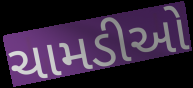
ચામડીઓ